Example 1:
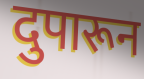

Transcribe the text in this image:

दुपारून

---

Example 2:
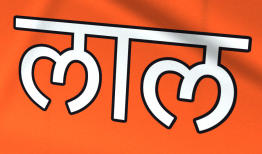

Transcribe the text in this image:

लाल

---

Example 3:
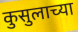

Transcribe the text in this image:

कुसुलाच्या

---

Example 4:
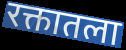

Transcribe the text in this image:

रक्तातला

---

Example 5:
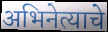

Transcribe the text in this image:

अभिनेत्याचे